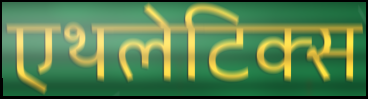
एथलेटिक्‍स